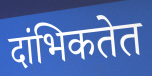
दांभिकतेत